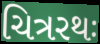
ચિત્રરથઃ